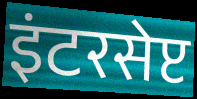
इंटरसेप्ट